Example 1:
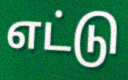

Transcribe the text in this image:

எட்டு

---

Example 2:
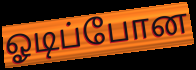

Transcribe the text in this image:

ஓடிப்போன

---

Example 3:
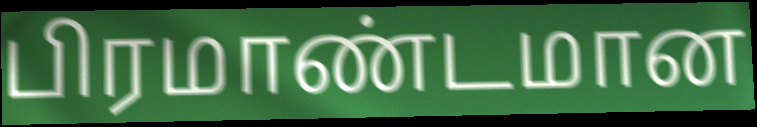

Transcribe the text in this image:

பிரமாண்டமான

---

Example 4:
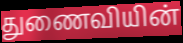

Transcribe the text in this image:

துணைவியின்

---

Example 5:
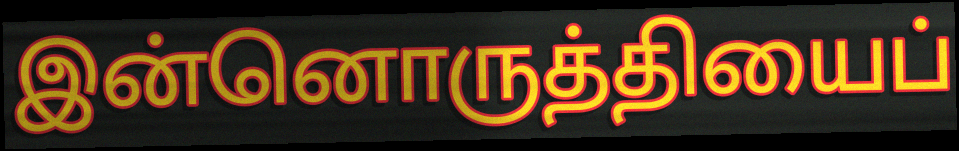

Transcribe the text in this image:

இன்னொருத்தியைப்